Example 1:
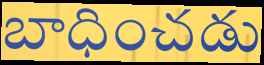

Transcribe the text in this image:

బాధించడు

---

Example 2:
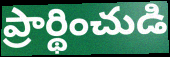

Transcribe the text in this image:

ప్రార్థించుడి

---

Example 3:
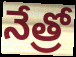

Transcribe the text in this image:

నేత్రో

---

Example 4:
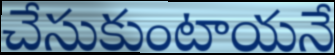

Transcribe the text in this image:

చేసుకుంటాయనే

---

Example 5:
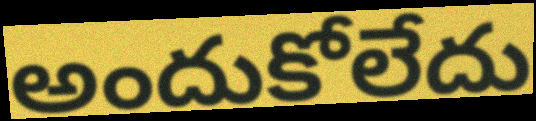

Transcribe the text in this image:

అందుకోలేదు